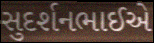
સુદર્શનભાઈએ